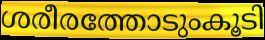
ശരീരത്തോടുംകൂടി